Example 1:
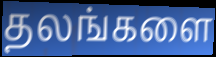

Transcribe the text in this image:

தலங்களை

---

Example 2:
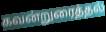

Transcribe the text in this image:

கவன்றுரைத்தல்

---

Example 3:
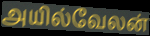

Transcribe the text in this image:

அயில்வேலன்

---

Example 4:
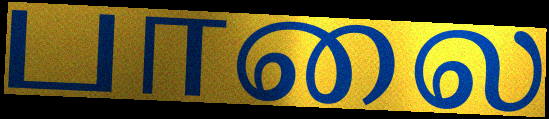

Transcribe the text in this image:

பாலை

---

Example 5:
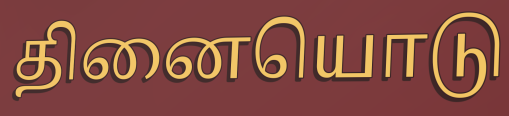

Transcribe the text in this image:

தினையொடு